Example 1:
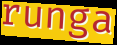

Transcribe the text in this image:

runga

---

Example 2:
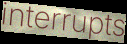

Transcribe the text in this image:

interrupts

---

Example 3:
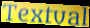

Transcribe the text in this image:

Textual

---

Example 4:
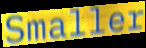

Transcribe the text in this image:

Smaller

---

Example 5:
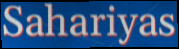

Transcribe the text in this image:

Sahariyas